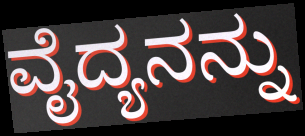
ವೈದ್ಯನನ್ನು